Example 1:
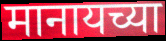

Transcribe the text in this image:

मानायच्या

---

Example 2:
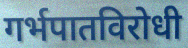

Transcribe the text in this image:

गर्भपातविरोधी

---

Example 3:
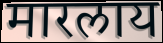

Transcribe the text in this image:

मारलाय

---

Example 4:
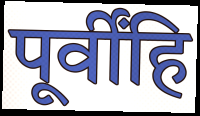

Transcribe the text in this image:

पूर्वींहि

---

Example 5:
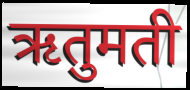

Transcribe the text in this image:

ऋतुमती